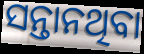
ସନ୍ତାନଥିବା